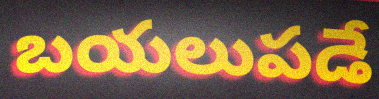
బయలుపడే